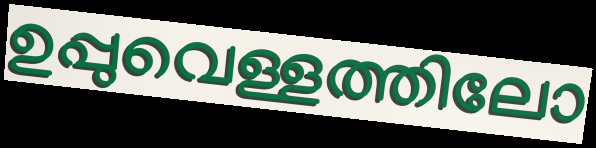
ഉപ്പുവെള്ളത്തിലോ